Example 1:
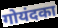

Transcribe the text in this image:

गोयंदका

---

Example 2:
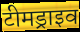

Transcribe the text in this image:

टीमड्राइव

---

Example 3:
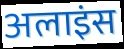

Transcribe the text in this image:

अलाइंस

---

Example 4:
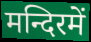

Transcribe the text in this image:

मन्दिरमें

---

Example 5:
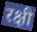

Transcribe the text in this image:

रक्षी